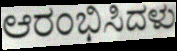
ಆರಂಭಿಸಿದಳು